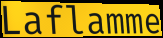
Laflamme